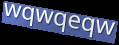
wqwqeqw